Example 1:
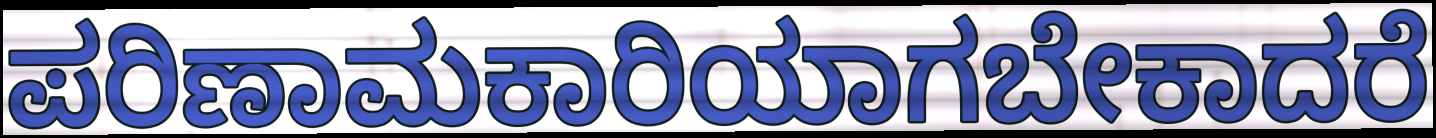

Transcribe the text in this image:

ಪರಿಣಾಮಕಾರಿಯಾಗಬೇಕಾದರೆ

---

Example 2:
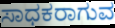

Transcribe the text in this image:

ಸಾಧಕರಾಗುವ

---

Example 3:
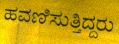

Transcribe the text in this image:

ಹವಣಿಸುತ್ತಿದ್ದರು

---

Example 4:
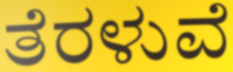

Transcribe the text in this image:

ತೆರಳುವೆ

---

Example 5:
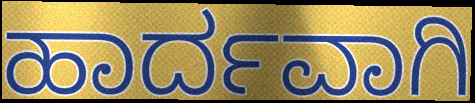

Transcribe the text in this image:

ಹಾರ್ದವಾಗಿ